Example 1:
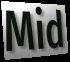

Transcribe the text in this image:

Mid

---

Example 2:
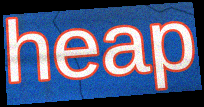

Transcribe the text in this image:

heap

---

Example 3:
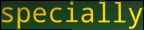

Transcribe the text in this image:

specially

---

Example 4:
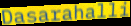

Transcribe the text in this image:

Dasarahalli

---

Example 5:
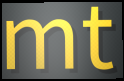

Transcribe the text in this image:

mt